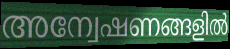
അന്വേഷണങ്ങളിൽ